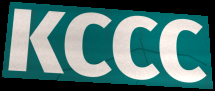
KCCC